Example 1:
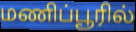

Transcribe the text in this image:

மணிப்பூரில்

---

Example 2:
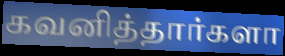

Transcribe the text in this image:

கவனித்தார்களா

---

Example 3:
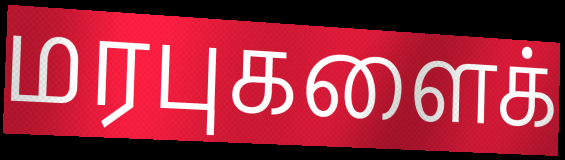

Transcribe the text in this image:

மரபுகளைக்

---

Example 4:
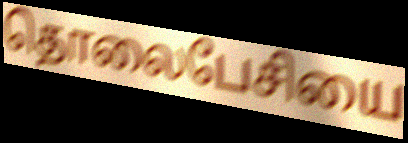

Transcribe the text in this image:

தொலைபேசியை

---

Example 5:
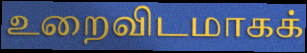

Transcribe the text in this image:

உறைவிடமாகக்